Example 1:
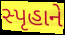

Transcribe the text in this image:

સ્પૃહાને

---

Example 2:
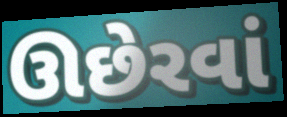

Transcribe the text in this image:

ઊછેરવાં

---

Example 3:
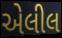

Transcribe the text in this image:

એલીલ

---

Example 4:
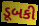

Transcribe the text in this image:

ડૂબકી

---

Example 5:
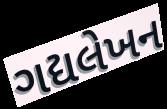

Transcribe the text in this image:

ગદ્યલેખન